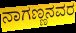
ನಾಗಣ್ಣನವರ